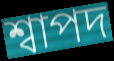
শ্বাপদ